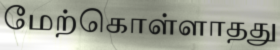
மேற்கொள்ளாதது